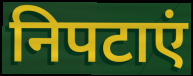
निपटाएं